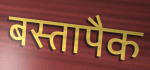
बस्तापैक